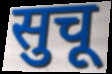
सुचू